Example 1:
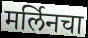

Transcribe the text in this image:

मर्लिनचा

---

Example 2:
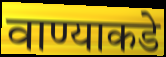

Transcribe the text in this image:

वाण्याकडे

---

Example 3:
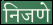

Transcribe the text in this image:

निजणे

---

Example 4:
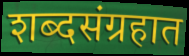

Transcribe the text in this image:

शब्दसंग्रहात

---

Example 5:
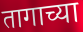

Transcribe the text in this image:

तागाच्या